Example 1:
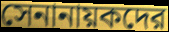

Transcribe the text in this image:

সেনানায়কদের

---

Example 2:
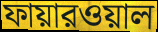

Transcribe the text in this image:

ফায়ারওয়াল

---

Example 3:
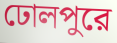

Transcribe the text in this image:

ঢোলপুরে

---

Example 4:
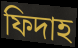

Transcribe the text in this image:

ফিদাহ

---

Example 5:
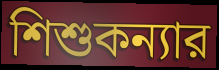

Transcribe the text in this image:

শিশুকন্যার